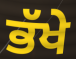
ਭੱਖੇ